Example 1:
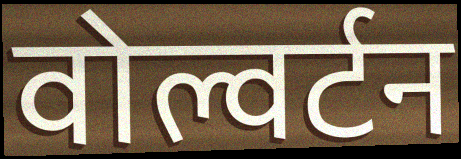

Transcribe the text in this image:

वोल्वर्टन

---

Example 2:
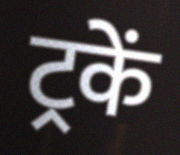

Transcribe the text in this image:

ट्रकें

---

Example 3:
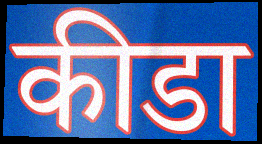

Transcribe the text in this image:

कीडा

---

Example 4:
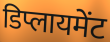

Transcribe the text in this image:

डिप्लायमेंट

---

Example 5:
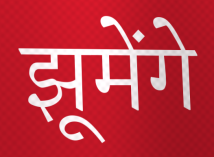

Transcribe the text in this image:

झूमेंगे